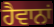
ਹੈਵਾਨਾਂ